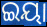
ଇୟା